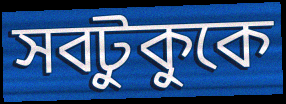
সবটুকুকে